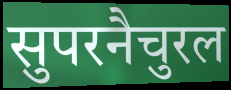
सुपरनैचुरल